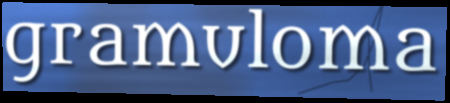
gramuloma